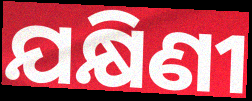
ଯକ୍ଷିଣୀ